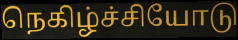
நெகிழ்ச்சியோடு